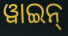
ୱାଇନ୍